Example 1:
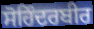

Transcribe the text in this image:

ਸੋਹਿੰਦਰਬੀਰ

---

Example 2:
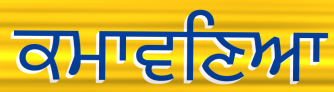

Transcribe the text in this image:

ਕਮਾਵਣਿਆ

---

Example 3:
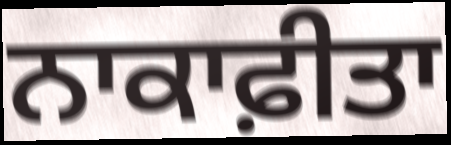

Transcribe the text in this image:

ਨਾਕਾਫ਼ੀਤਾ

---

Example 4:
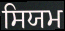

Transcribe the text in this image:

ਸਿਯਮ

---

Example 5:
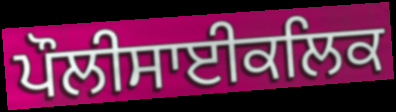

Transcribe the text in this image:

ਪੌਲੀਸਾਈਕਲਿਕ